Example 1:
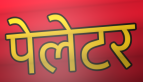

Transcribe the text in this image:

पेलेटर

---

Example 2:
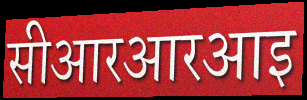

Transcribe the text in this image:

सीआरआरआइ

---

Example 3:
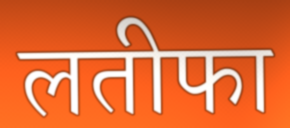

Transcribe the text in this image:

लतीफा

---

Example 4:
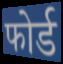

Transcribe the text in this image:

फोर्ड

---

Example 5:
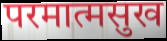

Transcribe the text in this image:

परमात्मसुख